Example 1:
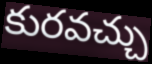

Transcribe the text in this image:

కురవచ్చు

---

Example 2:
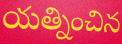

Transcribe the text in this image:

యత్నించిన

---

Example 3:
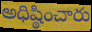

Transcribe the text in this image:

అధిష్ఠించారు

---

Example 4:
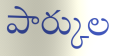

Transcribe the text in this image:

పార్కుల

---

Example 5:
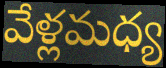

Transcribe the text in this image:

వేళ్లమధ్య